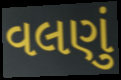
વલણું